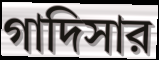
গাদিসার